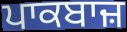
ਪਾਕਬਾਜ਼